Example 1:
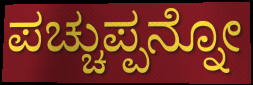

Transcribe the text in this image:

ಪಚ್ಚುಪ್ಪನ್ನೋ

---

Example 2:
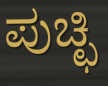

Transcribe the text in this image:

ಪುಚ್ಛಿ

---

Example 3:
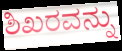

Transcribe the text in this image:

ಶಿಖರವನ್ನು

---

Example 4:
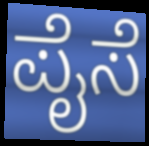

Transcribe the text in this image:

ಪೈಸೆ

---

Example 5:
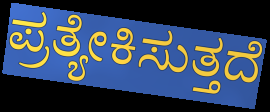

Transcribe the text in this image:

ಪ್ರತ್ಯೇಕಿಸುತ್ತದೆ